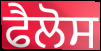
ਫੈਲੋਸ